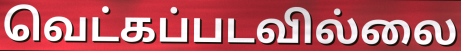
வெட்கப்படவில்லை